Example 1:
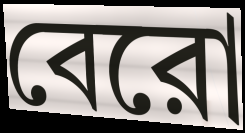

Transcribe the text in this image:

বেরো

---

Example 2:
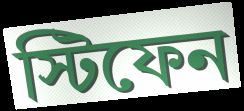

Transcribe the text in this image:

স্টিফেন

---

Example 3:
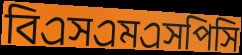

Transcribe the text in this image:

বিএসএমএসপিসি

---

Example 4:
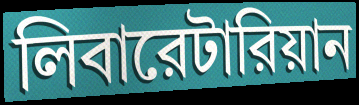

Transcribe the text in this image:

লিবারেটারিয়ান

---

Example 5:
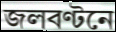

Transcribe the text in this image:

জলবণ্টনে